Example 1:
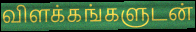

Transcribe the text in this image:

விளக்கங்களுடன்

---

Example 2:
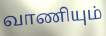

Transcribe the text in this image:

வாணியும்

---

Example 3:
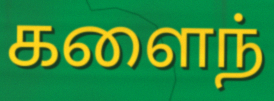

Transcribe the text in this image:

களைந்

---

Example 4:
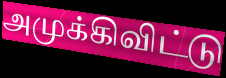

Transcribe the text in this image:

அமுக்கிவிட்டு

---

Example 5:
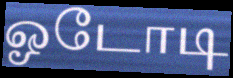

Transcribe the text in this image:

ஓடோடி